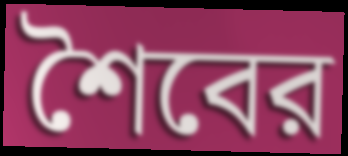
শৈবের